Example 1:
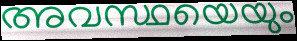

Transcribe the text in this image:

അവസ്ഥയെയും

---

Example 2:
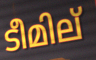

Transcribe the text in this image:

ടീമില്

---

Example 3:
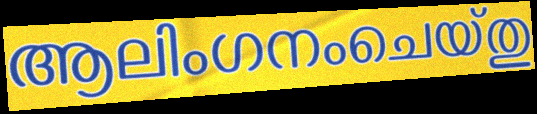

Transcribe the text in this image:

ആലിംഗനംചെയ്തു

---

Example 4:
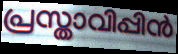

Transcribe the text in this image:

പ്രസ്താവിപ്പിൻ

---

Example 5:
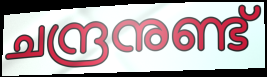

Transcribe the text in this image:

ചന്ദ്രനുണ്ട്